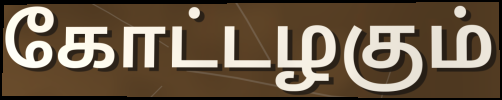
கோட்டழகும்